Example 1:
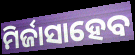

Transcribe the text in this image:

ମିର୍ଜାସାହେବ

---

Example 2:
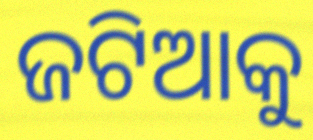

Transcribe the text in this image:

ଜଟିଆକୁ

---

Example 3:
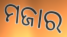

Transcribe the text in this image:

ମଜାର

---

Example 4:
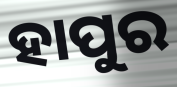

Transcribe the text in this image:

ହାପୁର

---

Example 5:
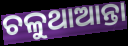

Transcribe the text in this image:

ଚଳୁଥାଆନ୍ତା